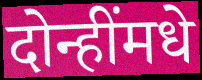
दोन्हींमधे